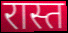
रास्त